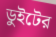
ডুইটের